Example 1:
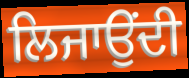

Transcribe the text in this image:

ਲਿਜਾਉਂਦੀ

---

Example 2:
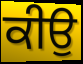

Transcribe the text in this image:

ਕੀਉ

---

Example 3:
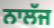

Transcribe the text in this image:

ਨਾਲੱਜ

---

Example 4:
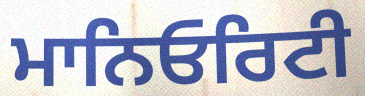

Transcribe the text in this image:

ਮਾਨਿਓਰਿਟੀ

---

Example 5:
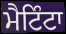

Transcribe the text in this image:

ਮੈਟਿੰਟਾ